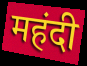
महंदी